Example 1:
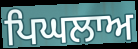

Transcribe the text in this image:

ਪਿਘਲਾਅ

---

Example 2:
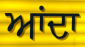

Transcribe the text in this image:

ਆਂਦਾ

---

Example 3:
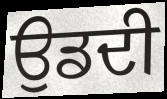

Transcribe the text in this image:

ਉਡਦੀ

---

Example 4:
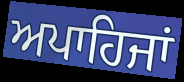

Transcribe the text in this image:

ਅਪਾਹਿਜਾਂ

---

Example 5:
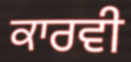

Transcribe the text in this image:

ਕਾਰਵੀ